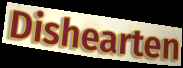
Dishearten